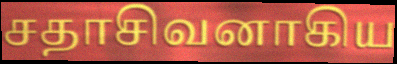
சதாசிவனாகிய